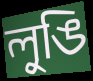
লুঙি